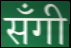
सँगी